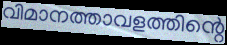
വിമാനത്താവളത്തിന്റെ